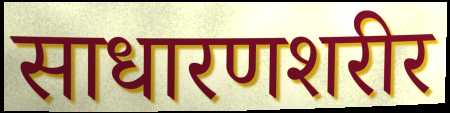
साधारणशरीर